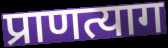
प्राणत्याग